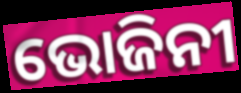
ଭୋଜିନୀ